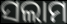
ସଲାମ